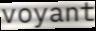
voyant